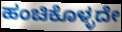
ಹಂಚಿಕೊಳ್ಳದೇ